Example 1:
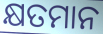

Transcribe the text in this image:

କ୍ଷତମାନ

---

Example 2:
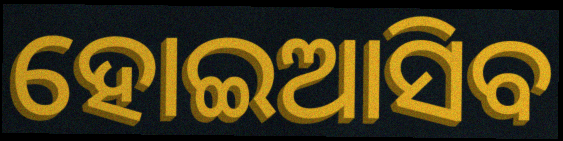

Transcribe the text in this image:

ହୋଇଆସିବ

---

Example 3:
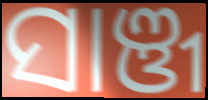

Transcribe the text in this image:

ସାଞ୍ଜ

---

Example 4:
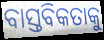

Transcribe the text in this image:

ବାସ୍ତବିକତାକୁ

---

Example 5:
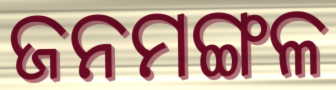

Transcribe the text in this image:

ଜନମଙ୍ଗଳ